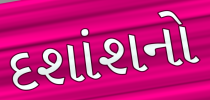
દશાંશનો